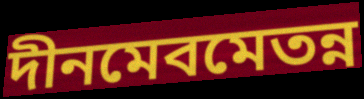
দীনমেবমেতন্ন